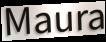
Maura